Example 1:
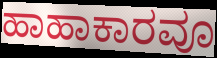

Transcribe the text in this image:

ಹಾಹಾಕಾರವೂ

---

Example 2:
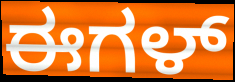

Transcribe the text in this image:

ಈಗಳ್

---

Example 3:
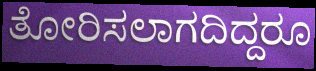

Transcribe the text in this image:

ತೋರಿಸಲಾಗದಿದ್ದರೂ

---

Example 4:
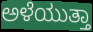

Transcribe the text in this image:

ಅಳೆಯುತ್ತಾ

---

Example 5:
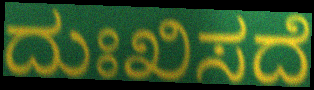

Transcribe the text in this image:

ದುಃಖಿಸದೆ